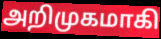
அறிமுகமாகி